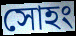
সোহং